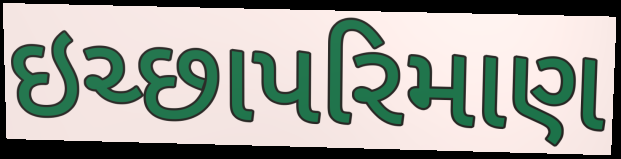
ઇચ્છાપરિમાણ